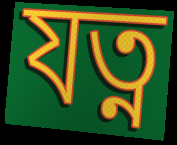
যত্ন